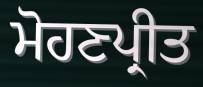
ਮੋਹਣਪ੍ਰੀਤ